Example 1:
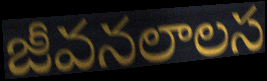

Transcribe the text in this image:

జీవనలాలస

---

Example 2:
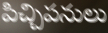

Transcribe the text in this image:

పిచ్చిపనులు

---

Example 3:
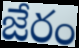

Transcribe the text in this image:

జేరం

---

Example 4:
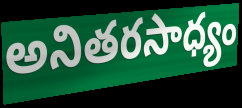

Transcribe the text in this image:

అనితరసాధ్యం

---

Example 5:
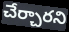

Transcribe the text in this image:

చేర్చారని